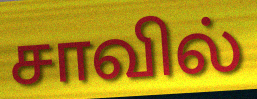
சாவில்